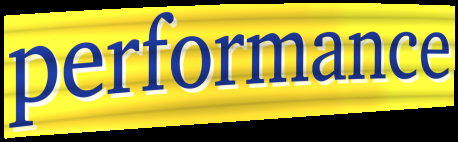
performance